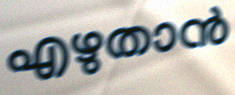
എഴുതാൻ